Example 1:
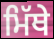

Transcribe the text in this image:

ਮਿੱਥੇ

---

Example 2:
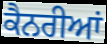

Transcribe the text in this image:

ਕੈਨਰੀਆਂ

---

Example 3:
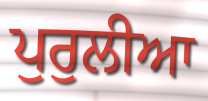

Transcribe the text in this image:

ਪੁਰੁਲੀਆ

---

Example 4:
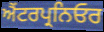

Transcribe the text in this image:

ਐਂਟਰਪ੍ਰਨਿਓਰ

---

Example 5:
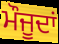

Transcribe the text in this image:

ਮੌਜੂਦਾਂ